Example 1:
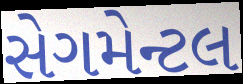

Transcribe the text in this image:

સેગમેન્ટલ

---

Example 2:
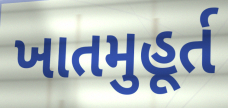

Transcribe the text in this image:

ખાતમુહૂર્ત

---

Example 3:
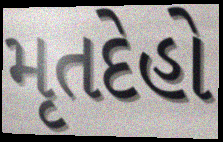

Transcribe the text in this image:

મૃતદેહો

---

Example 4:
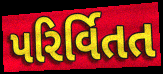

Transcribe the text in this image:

પરિર્વિતત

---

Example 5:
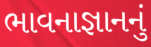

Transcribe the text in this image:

ભાવનાજ્ઞાનનું